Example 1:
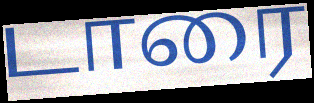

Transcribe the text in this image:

டாரை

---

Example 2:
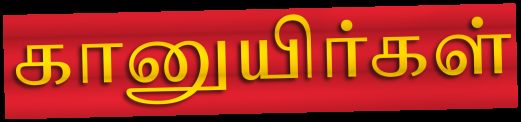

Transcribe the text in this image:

கானுயிர்கள்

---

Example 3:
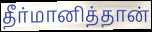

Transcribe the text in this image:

தீர்மானித்தான்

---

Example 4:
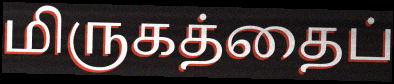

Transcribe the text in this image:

மிருகத்தைப்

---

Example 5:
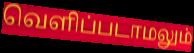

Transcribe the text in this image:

வெளிப்படாமலும்